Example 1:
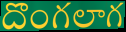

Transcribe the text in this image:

దొంగలాగ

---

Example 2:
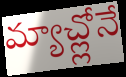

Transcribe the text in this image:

మ్యాచ్ల్లోనే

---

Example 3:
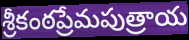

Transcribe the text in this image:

శ్రీకంఠప్రేమపుత్రాయ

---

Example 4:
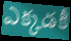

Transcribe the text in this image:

ఎక్కడకీ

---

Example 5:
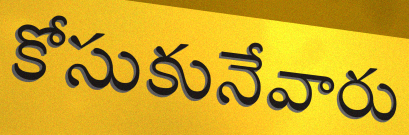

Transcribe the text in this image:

కోసుకునేవారు